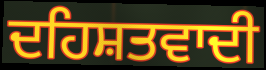
ਦਹਿਸ਼ਤਵਾਦੀ